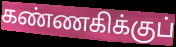
கண்ணகிக்குப்